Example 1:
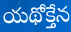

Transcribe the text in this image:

యథోక్తేన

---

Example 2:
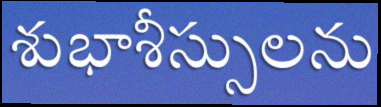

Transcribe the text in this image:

శుభాశీస్సులను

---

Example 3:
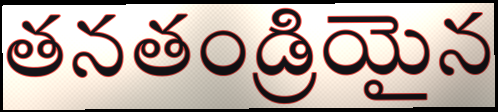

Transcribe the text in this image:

తనతండ్రియైన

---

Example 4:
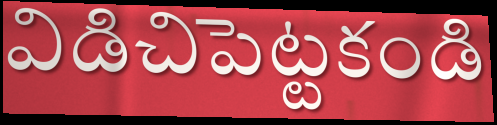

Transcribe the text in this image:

విడిచిపెట్టకండి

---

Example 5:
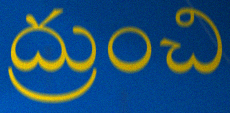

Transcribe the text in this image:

ద్రుంచి